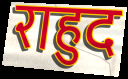
राहुद